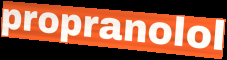
propranolol